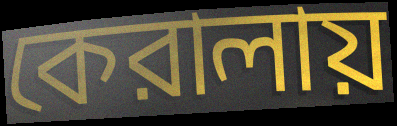
কেরালায়